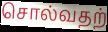
சொல்வதற்